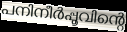
പനിനീർപ്പൂവിന്റെ